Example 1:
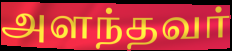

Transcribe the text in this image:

அளந்தவர்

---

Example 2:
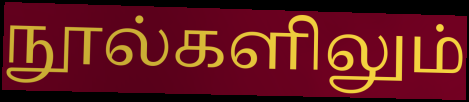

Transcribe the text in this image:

நூல்களிலும்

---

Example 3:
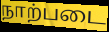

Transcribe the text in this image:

நாற்படை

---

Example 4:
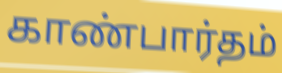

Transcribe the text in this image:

காண்பார்தம்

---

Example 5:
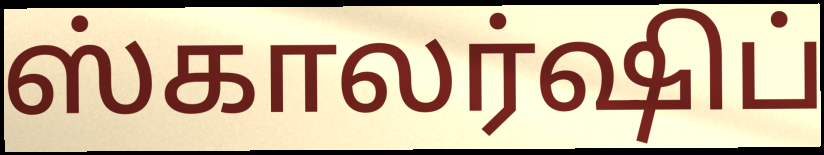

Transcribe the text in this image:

ஸ்காலர்ஷிப்